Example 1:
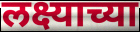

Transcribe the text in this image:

लक्ष्याच्या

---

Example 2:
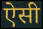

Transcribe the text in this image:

ऐसी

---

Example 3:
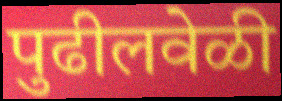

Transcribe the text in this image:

पुढीलवेळी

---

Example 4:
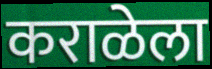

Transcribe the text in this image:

कराळेला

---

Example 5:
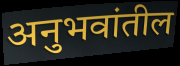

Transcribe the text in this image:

अनुभवांतील